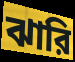
ঝারি